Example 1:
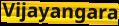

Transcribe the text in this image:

Vijayangara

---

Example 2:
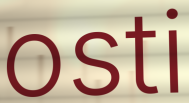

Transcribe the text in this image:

osti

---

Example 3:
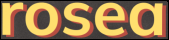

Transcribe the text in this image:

rosea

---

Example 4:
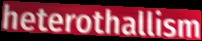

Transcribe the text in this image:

heterothallism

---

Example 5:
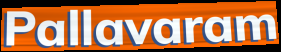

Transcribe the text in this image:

Pallavaram